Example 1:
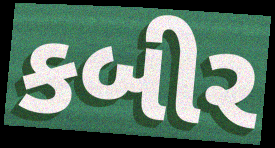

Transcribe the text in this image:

કબીર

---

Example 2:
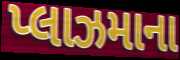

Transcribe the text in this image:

પ્લાઝમાના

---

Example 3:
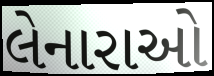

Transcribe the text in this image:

લેનારાઓ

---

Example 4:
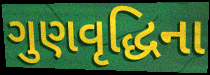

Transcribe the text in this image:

ગુણવૃદ્ધિના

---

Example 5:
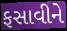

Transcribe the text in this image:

ફસાવીને